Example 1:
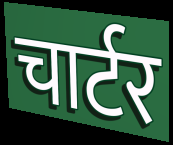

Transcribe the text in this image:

चार्टर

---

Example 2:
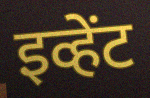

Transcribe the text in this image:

इव्हेंट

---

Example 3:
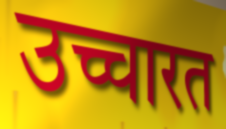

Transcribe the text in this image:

उच्चारत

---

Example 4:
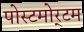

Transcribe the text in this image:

पोस्टमोर्टम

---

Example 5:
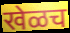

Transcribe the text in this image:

खेळच